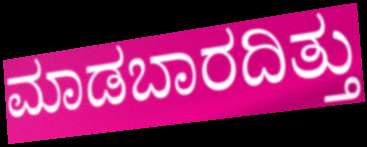
ಮಾಡಬಾರದಿತ್ತು